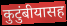
कुटुंबीयासह